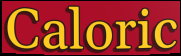
Caloric